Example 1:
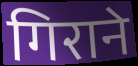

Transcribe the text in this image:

गिराने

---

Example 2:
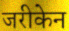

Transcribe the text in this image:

जरीकेन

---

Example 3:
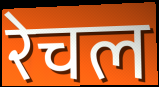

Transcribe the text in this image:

रेचल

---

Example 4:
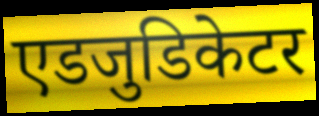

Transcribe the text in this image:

एडजुडिकेटर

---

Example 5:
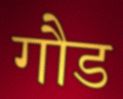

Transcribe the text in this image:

गौड